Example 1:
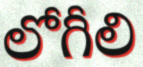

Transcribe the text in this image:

లోగీలి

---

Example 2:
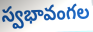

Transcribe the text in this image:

స్వభావంగల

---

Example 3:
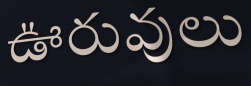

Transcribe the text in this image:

ఊరువులు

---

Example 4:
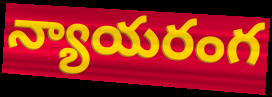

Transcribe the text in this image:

న్యాయరంగ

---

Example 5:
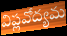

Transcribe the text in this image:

విప్లవోద్యమ